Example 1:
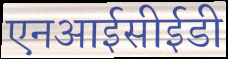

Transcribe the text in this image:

एनआईसीईडी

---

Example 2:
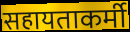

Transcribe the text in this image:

सहायताकर्मी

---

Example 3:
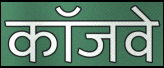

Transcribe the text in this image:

कॉजवे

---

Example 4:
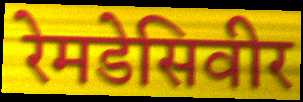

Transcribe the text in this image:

रेमडेसिवीर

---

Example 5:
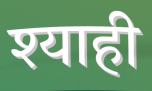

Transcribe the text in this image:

श्याही